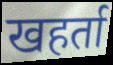
खहर्ता